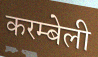
करम्बेली